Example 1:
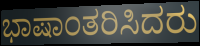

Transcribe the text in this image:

ಭಾಷಾಂತರಿಸಿದರು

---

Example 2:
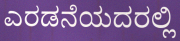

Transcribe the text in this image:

ಎರಡನೆಯದರಲ್ಲಿ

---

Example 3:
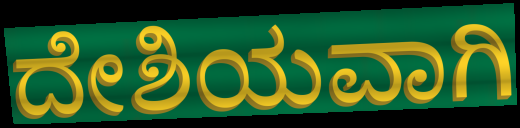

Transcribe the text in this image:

ದೇಶಿಯವಾಗಿ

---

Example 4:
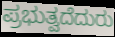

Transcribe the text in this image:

ಪ್ರಭುತ್ವದೆದುರು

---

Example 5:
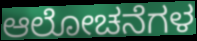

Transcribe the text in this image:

ಆಲೋಚನೆಗಳ